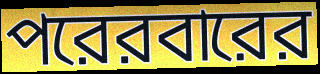
পরেরবারের